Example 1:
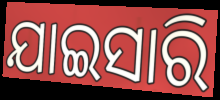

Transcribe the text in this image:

ଯାଇସାରି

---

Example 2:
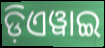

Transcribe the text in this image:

ଡ଼ିଏୱାଇ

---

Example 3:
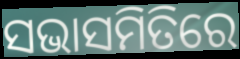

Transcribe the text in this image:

ସଭାସମିତିରେ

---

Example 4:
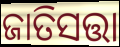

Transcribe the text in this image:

ଜାତିସତ୍ତା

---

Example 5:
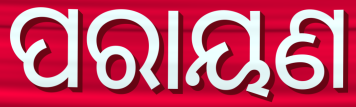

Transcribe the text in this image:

ପରାୟଣ